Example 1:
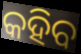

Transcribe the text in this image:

କହିବ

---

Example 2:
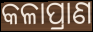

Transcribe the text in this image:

କଳାପ୍ରାଣ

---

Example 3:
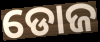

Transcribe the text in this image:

ଡୋଜ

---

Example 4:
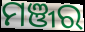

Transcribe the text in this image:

ମଞ୍ଜର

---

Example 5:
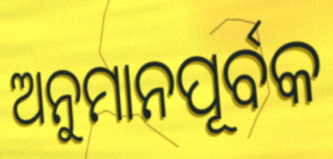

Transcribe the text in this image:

ଅନୁମାନପୂର୍ବକ